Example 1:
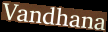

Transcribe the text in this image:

Vandhana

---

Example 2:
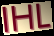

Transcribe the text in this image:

IHL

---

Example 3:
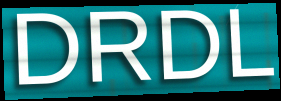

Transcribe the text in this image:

DRDL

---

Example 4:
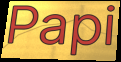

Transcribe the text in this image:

Papi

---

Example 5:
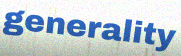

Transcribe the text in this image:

generality